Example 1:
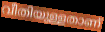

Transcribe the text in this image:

വീതിയുള്ളതാണ്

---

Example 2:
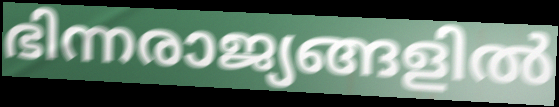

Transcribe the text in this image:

ഭിന്നരാജ്യങ്ങളിൽ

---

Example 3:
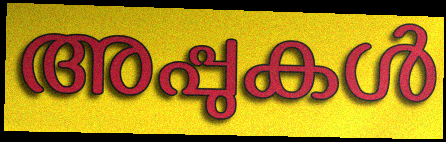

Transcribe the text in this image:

അപ്പുകൾ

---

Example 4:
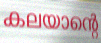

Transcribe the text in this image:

കലയാന്റെ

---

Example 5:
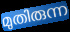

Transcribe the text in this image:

മുതിരുന്ന